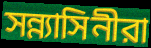
সন্ন্যাসিনীরা